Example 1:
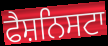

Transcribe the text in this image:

ਫੈਸ਼ਨਿਸਟਾ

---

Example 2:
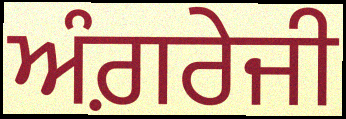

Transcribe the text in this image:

ਅੰਗ਼ਰੇਜੀ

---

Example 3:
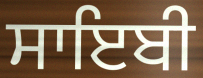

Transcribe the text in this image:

ਸਾਇਬੀ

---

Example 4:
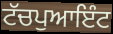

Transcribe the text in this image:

ਟੱਚਪੁਆਇੰਟ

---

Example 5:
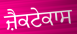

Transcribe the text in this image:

ਜ਼ੈਕਟੇਕਾਸ